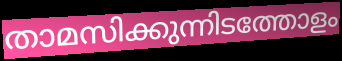
താമസിക്കുന്നിടത്തോളം